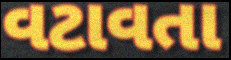
વટાવતા